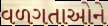
વળગતાઓને